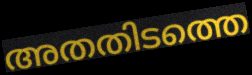
അതതിടത്തെ